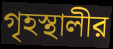
গৃহস্থালীর